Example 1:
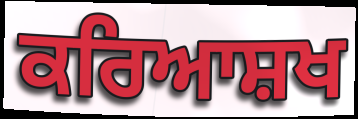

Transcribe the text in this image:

ਕਰਿਆਸ਼ਖ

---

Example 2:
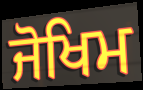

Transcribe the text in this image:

ਜੋਖਿਮ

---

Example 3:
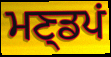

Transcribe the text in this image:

ਮਣ੍ਡਪਂ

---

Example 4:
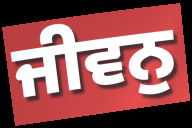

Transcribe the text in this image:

ਜੀਵਨੁ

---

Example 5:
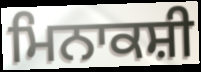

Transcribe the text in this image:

ਮਿਨਾਕਸ਼ੀ